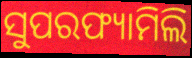
ସୁପରଫ୍ୟାମିଲି